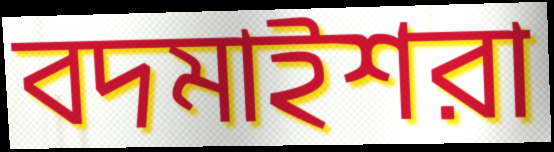
বদমাইশরা